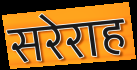
सरेराह